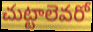
చుట్టాలెవరో